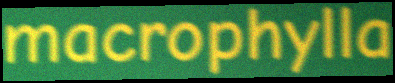
macrophylla